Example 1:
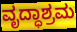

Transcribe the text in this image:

ವೃದ್ಧಾಶ್ರಮ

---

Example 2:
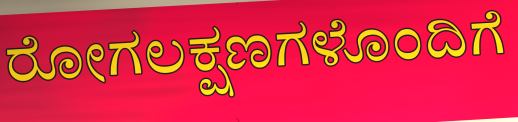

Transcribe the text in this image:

ರೋಗಲಕ್ಷಣಗಳೊಂದಿಗೆ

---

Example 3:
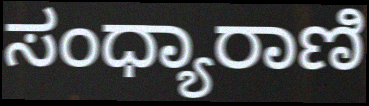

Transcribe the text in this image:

ಸಂಧ್ಯಾರಾಣಿ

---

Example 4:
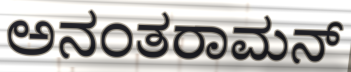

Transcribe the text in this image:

ಅನಂತರಾಮನ್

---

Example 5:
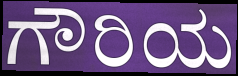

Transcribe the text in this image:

ಗೌರಿಯ